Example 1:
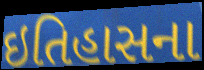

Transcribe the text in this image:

ઇતિહાસના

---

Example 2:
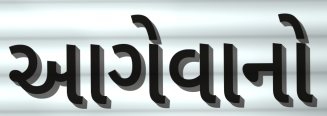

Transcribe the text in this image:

આગેવાનો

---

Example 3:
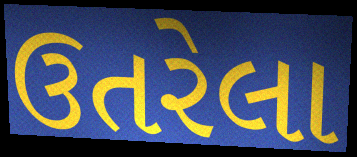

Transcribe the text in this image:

ઉતરેલા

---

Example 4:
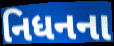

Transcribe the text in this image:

નિધનના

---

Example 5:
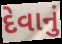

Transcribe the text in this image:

દેવાનું